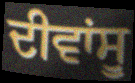
ਦੀਵਾਂਸੂ